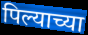
पिल्याच्या